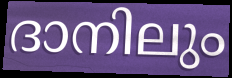
ദാനിലും